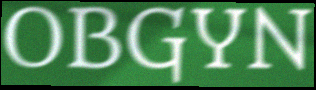
OBGYN